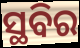
ସ୍ଥବିର